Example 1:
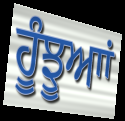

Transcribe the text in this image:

ਹੂੰਝੂਆਾਂ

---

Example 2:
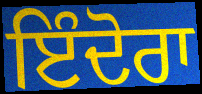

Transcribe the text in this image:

ਇੰਦੋਰਾ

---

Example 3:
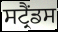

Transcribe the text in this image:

ਸਟ੍ਰੈਂਡਸ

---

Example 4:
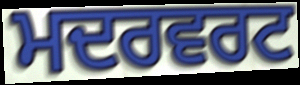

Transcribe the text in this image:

ਮਦਰਵਰਟ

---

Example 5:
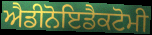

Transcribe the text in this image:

ਐਡੀਨੋਇਡੈਕਟੋਮੀ